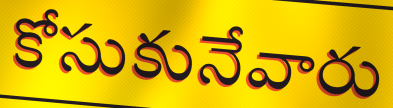
కోసుకునేవారు